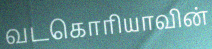
வடகொரியாவின்